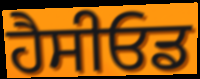
ਹੈਸੀਓਡ